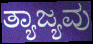
ತ್ಯಾಜ್ಯವು